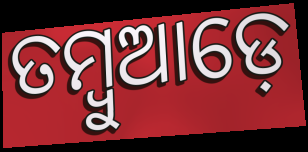
ତମ୍ବୁଆଡ଼େ